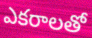
ఎకరాలతో